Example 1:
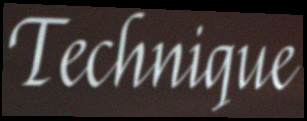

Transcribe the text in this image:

Technique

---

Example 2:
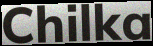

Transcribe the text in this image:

Chilka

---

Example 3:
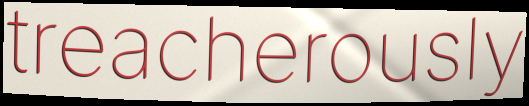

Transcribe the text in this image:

treacherously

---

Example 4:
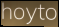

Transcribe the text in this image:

hoyto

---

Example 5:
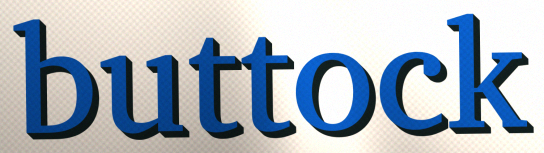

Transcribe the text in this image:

buttock